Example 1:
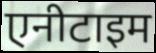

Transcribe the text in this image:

एनीटाइम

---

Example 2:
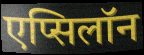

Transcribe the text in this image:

एप्सिलॉन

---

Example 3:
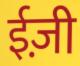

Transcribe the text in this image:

ईज़ी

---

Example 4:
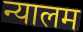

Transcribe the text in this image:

न्यालम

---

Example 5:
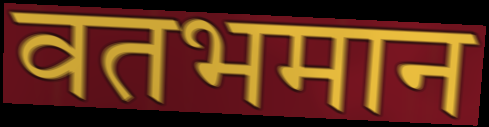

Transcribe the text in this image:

वतभमान